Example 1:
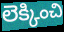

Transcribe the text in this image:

లెక్కించి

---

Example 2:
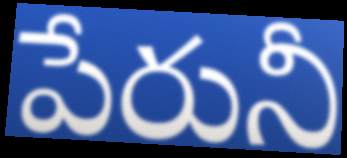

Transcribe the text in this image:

పేరునీ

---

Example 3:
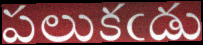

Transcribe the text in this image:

పలుకఁడు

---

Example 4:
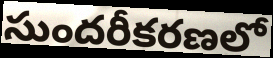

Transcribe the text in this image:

సుందరీకరణలో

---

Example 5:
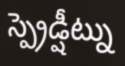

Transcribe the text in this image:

స్ప్రెడ్షీట్ను